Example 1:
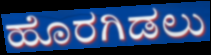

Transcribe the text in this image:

ಹೊರಗಿಡಲು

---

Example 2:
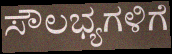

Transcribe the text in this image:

ಸೌಲಭ್ಯಗಳಿಗೆ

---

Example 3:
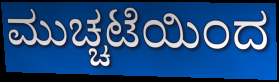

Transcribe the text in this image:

ಮುಚ್ಚಟೆಯಿಂದ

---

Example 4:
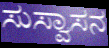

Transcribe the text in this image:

ಸುಸ್ವಾಸನ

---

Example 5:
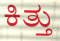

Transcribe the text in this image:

ಕಿತ್ತು